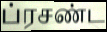
ப்ரசண்ட